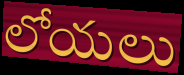
లోయలు